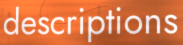
descriptions